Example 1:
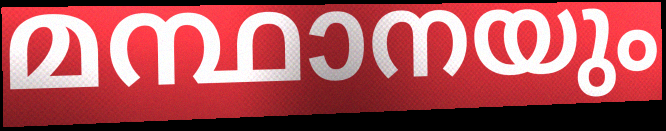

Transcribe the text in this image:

മന്ഥാനയും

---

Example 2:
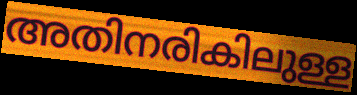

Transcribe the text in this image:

അതിനരികിലുള്ള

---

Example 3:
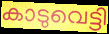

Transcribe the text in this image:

കാടുവെട്ടി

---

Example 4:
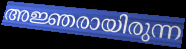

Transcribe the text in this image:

അജ്ഞരായിരുന്ന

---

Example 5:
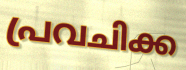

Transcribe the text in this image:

പ്രവചിക്ക